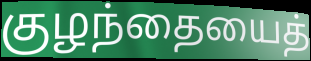
குழந்தையைத்